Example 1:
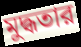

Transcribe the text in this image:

মুদ্ধতার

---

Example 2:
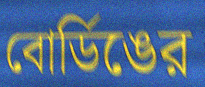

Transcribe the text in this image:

বোর্ডিঙের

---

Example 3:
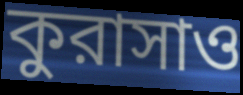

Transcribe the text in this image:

কুরাসাও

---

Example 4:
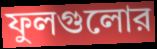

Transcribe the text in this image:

ফুলগুলোর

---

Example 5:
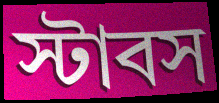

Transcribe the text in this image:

স্টাবস